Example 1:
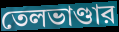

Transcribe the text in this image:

তেলভাণ্ডার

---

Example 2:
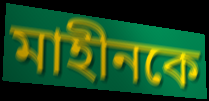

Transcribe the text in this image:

মাহীনকে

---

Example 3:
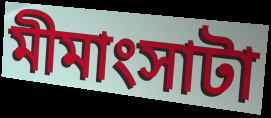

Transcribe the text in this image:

মীমাংসাটা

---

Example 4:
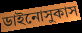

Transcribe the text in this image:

ডাইনোসুকাস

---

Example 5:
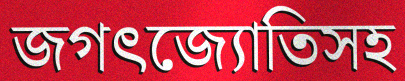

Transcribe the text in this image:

জগৎজ্যোতিসহ